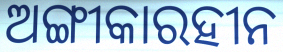
ଅଙ୍ଗୀକାରହୀନ